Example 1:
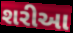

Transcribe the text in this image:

શરીઆ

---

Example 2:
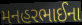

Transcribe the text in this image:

મનહરભાઈના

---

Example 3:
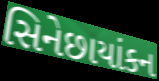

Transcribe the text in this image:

સિનેછાયાંકન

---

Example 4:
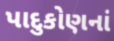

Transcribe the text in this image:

પાદુકોણનાં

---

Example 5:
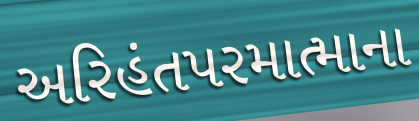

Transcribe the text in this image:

અરિહંતપરમાત્માના